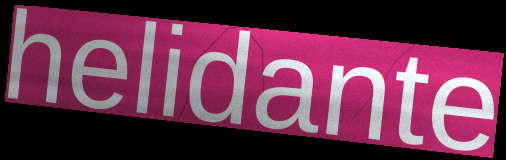
helidante